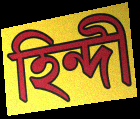
হিন্দী